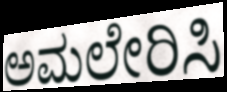
ಅಮಲೇರಿಸಿ